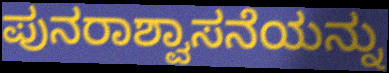
ಪುನರಾಶ್ವಾಸನೆಯನ್ನು